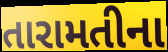
તારામતીના